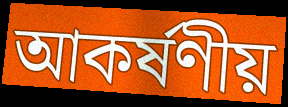
আকর্ষণীয়